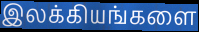
இலக்கியங்களை